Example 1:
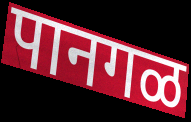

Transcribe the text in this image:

पानगळ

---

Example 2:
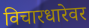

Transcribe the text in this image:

विचारधारेवर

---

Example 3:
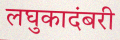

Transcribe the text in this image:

लघुकादंबरी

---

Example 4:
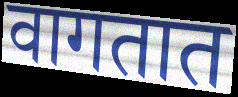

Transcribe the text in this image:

वागतात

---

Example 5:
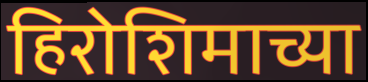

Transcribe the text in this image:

हिरोशिमाच्या